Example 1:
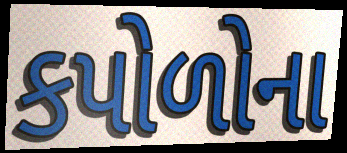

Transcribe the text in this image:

કપોળોના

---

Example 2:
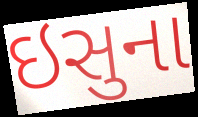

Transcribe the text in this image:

ઇસુના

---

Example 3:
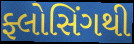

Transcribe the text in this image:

ફ્લોસિંગથી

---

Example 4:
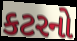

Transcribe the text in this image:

કટરનો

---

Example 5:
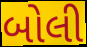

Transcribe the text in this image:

બોલી